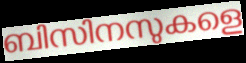
ബിസിനസുകളെ